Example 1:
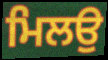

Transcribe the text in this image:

ਮਿਲਉ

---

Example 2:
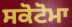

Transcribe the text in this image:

ਸਕੋਟੋਮਾ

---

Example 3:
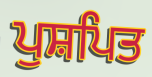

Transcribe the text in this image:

ਪੁਸ਼ਪਿਤ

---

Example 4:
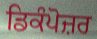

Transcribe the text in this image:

ਡਿਕੰਪੋਜ਼ਰ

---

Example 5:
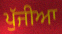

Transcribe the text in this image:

ਪੁੱਜੀਆ